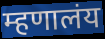
म्हणालंय